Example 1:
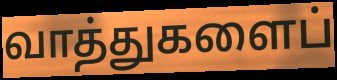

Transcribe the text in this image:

வாத்துகளைப்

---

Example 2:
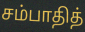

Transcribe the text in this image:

சம்பாதித்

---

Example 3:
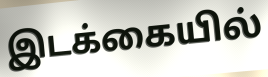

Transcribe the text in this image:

இடக்கையில்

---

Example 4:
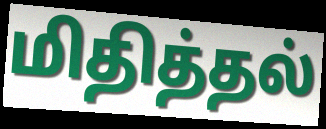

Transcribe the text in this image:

மிதித்தல்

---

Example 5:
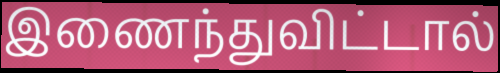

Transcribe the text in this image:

இணைந்துவிட்டால்